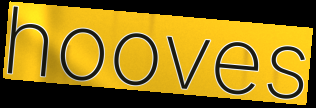
hooves